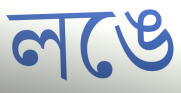
লঙে